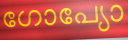
ഗോപ്യോ